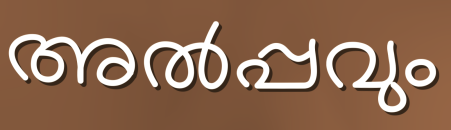
അൽപ്പവും